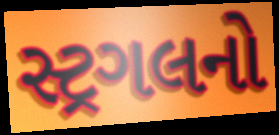
સ્ટ્રગલનો